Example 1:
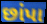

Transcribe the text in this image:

છાંપા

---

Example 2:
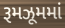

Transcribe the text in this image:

રૂમઝૂમમાં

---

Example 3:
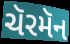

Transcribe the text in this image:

ચૅરમૅન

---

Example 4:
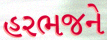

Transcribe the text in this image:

હરભજને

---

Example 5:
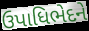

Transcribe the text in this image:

ઉપાધિભેદને